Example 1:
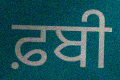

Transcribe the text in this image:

ਫ਼ਬੀ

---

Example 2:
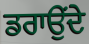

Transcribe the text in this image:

ਡਰਾਉਂਦੇ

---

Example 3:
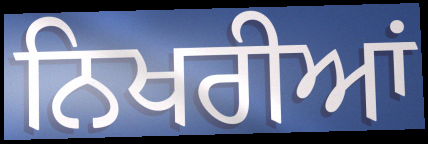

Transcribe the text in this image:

ਨਿਖਰੀਆਂ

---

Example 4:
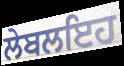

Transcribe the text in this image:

ਲੇਬਲਇਹ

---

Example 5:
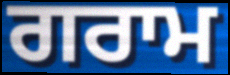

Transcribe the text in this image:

ਗਰਾਮ